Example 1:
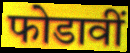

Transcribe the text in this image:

फोडावीं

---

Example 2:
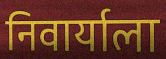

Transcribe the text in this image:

निवार्याला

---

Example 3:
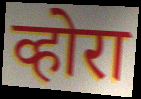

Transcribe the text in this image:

व्होरा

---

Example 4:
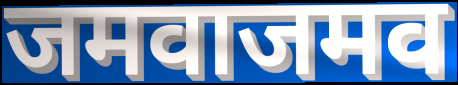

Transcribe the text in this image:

जमवाजमव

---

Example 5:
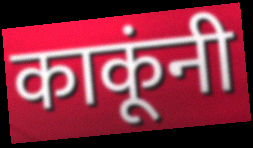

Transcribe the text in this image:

काकूंनी